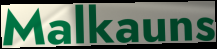
Malkauns